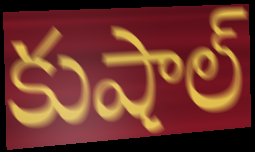
కుషాల్